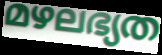
മഴലഭ്യത